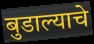
बुडाल्याचे